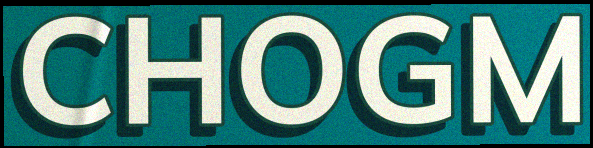
CHOGM